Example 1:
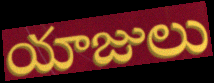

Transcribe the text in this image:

యాజులు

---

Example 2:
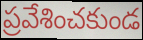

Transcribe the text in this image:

ప్రవేశించకుండ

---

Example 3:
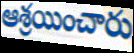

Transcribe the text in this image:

ఆశ్రయించారు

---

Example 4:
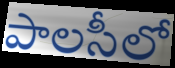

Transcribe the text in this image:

పాలసీలో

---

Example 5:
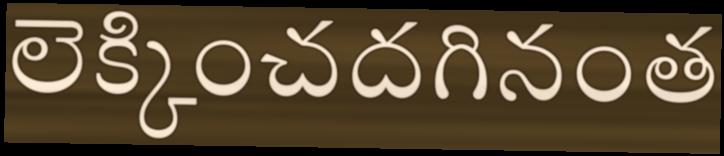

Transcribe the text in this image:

లెక్కించదగినంత